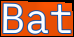
Bat